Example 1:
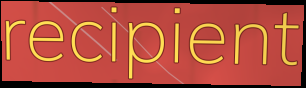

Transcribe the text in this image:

recipient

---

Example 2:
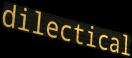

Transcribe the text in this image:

dilectical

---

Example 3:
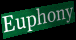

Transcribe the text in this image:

Euphony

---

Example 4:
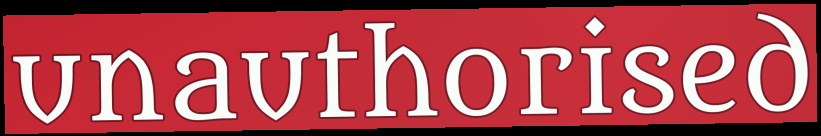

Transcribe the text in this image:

unauthorised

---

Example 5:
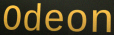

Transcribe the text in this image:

Odeon